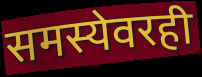
समस्येवरही